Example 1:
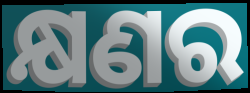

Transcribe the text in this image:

କ୍ଷଣର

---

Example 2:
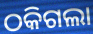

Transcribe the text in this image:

ଠକିଗଲା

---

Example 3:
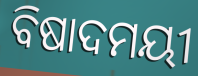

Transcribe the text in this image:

ବିଷାଦମୟୀ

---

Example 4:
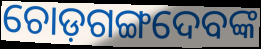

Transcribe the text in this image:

ଚୋଡ଼ଗଙ୍ଗଦେବଙ୍କ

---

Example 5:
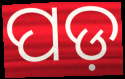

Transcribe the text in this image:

ପଡ଼